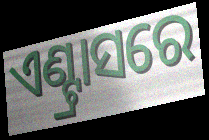
ଏଣ୍ଟ୍ରାସରେ